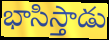
భాసిస్తాడు